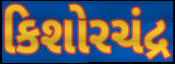
કિશોરચંદ્ર